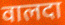
वालदा